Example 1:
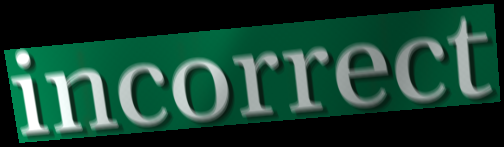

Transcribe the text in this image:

incorrect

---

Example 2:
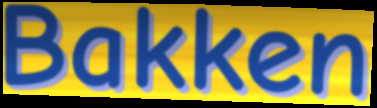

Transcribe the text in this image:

Bakken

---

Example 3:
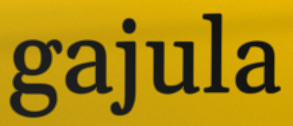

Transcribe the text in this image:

gajula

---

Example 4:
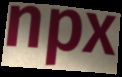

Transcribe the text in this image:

npx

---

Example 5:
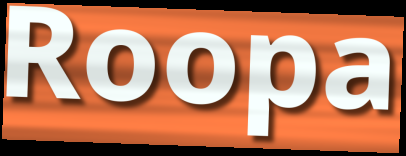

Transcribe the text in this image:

Roopa